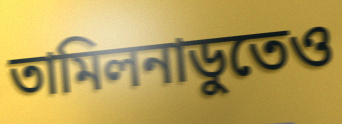
তামিলনাডুতেও